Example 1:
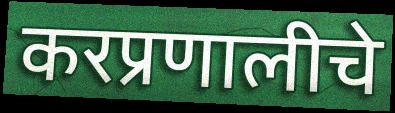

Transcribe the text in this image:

करप्रणालीचे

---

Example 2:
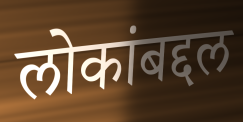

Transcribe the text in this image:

लोकांबद्दल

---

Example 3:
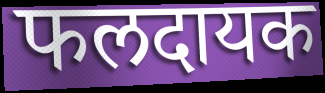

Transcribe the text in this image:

फलदायक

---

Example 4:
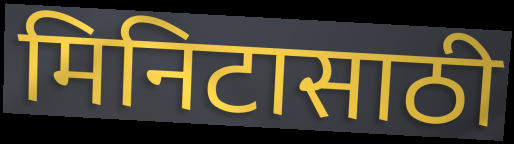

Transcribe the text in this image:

मिनिटासाठी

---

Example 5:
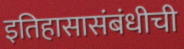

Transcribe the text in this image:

इतिहासासंबंधीची